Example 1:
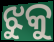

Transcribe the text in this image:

ଝୁକୁ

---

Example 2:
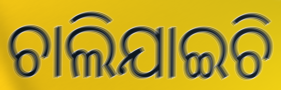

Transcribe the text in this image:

ଚାଲିଯାଇଚି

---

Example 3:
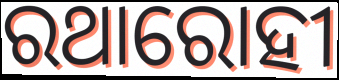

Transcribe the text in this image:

ରଥାରୋହୀ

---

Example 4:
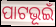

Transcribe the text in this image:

ପାଟଭୂଇଁ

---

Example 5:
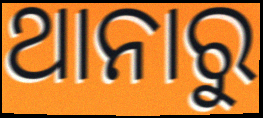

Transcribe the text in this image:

ଥାନାରୁ